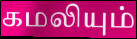
கமலியும்